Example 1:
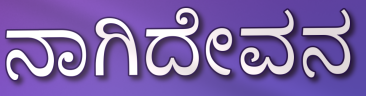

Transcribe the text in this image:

ನಾಗಿದೇವನ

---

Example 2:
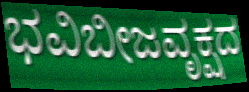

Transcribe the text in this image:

ಭವಿಬೀಜವೃಕ್ಷದ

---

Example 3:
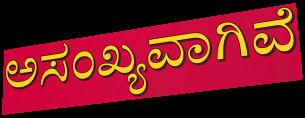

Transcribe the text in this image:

ಅಸಂಖ್ಯವಾಗಿವೆ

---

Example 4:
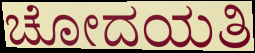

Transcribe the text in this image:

ಚೋದಯತಿ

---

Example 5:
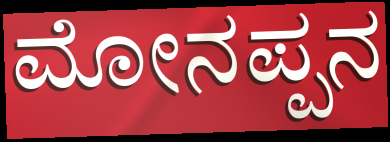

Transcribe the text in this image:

ಮೋನಪ್ಪನ